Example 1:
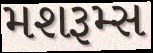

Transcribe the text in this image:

મશરૂમ્સ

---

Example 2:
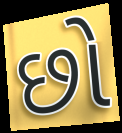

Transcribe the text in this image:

છો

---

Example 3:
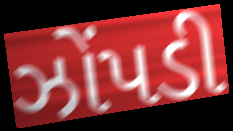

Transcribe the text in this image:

ઝોંપડી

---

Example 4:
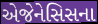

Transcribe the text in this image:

એજેનેસિસના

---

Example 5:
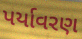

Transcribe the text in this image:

પર્યાવરણ